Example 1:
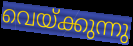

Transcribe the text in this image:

വെയ്ക്കുന്നു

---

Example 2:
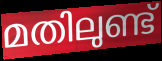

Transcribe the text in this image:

മതിലുണ്ട്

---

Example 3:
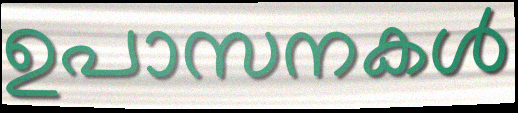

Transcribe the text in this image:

ഉപാസനകൾ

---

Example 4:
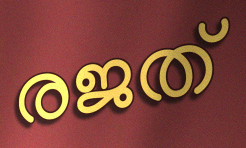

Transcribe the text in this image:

രജത്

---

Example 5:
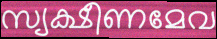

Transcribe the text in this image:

സ്യക്ഷീണമേവ